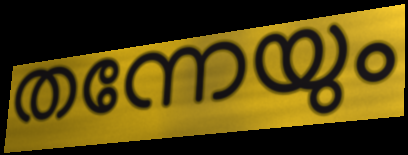
തന്നേയും